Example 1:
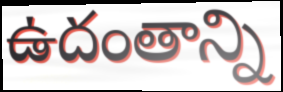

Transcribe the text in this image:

ఉదంతాన్ని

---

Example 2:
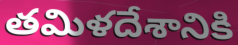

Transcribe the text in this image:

తమిళదేశానికి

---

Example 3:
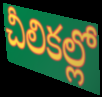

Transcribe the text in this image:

చీలికల్లో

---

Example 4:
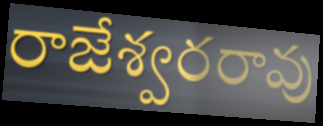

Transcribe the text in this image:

రాజేశ్వరరావు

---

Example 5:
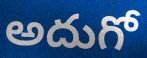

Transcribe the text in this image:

అదుగో